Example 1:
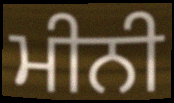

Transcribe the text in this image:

ਮੀਨੀ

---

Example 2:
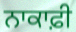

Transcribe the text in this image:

ਨਾਕਾਫ਼ੀ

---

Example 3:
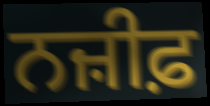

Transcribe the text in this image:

ਨਜ਼ੀਫ਼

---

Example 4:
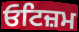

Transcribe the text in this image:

ਓਟਿਜ਼ਮ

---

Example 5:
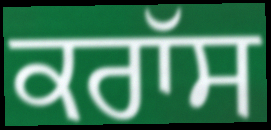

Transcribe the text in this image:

ਕਰਾੱਸ